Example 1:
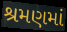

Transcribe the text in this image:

શ્રમણમાં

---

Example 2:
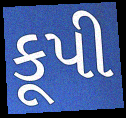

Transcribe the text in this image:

કૂપી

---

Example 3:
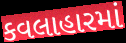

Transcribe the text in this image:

કવલાહારમાં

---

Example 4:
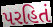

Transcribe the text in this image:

પરહિતં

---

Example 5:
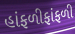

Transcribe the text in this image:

હાંફળીફાંફળી